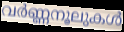
വർണ്ണനൂലുകൾ